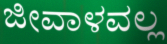
ಜೀವಾಳವಲ್ಲ